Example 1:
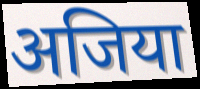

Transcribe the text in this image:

अजिया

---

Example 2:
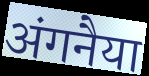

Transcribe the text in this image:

अंगनैया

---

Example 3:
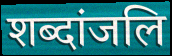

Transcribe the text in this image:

शब्दांजलि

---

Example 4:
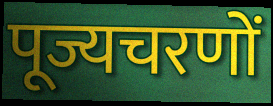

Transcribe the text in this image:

पूज्यचरणों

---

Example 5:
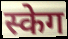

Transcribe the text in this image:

स्केग